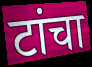
टांचा